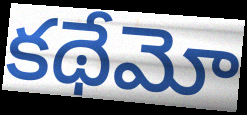
కథేమో